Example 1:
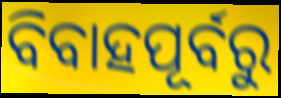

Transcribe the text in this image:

ବିବାହପୂର୍ବରୁ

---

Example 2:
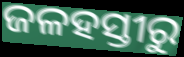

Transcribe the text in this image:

ଜଳହସ୍ତୀରୁ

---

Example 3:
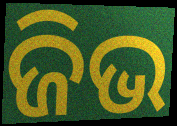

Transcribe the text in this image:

ଜିଭ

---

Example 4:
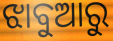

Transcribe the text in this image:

ଝାବୁଆରୁ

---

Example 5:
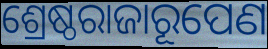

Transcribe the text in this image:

ଶ୍ରେଷ୍ଠରାଜାରୂପେଣ